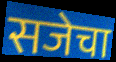
सजेचा